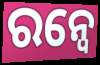
ରନ୍ୱେ